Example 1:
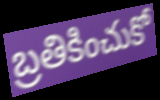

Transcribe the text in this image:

బ్రతికించుకో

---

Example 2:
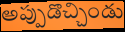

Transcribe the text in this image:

అప్పుడొచ్చిండు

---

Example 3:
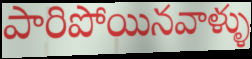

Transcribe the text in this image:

పారిపోయినవాళ్ళు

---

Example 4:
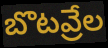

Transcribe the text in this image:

బొటవ్రేల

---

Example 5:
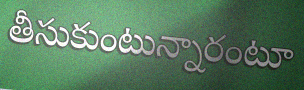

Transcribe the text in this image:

తీసుకుంటున్నారంటూ